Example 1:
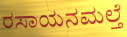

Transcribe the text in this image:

ರಸಾಯನಮಲ್ತೆ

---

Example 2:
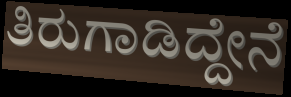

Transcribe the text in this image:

ತಿರುಗಾಡಿದ್ದೇನೆ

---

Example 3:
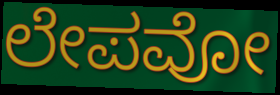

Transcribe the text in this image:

ಲೇಪವೋ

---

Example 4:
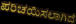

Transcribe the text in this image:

ಪರಿಚಯಿಸಲಾಗಿದೆ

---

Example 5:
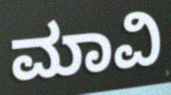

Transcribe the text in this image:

ಮಾವಿ